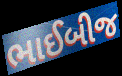
ભાઈબીજ